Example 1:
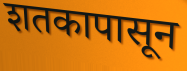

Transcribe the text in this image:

शतकापासून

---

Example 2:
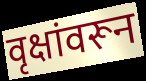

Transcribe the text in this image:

वृक्षांवरून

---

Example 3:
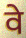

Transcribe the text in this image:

वे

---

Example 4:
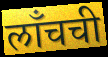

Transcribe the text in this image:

लाँचची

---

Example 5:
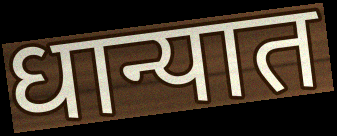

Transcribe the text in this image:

धान्यात